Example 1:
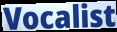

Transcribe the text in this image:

Vocalist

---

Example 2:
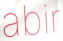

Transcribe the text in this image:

abir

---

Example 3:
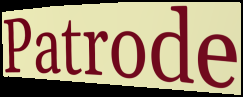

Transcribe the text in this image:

Patrode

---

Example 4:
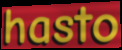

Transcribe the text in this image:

hasto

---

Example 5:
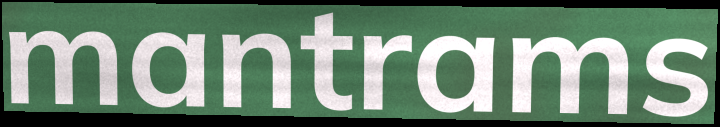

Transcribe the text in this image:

mantrams